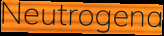
Neutrogena